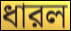
ধারল